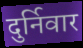
दुर्निवार